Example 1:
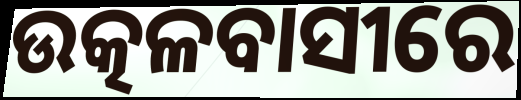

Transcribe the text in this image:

ଉତ୍କଳବାସୀରେ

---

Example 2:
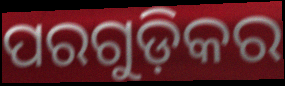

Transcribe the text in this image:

ପରଗୁଡ଼ିକର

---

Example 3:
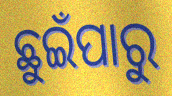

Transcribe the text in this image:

ଛୁଇଁପାରୁ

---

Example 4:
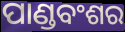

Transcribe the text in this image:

ପାଣ୍ଡବଂଶର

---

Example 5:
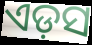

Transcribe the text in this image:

ଏଡ଼ସ